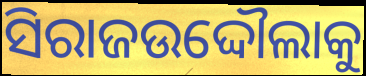
ସିରାଜଉଦ୍ଦୌଲାକୁ